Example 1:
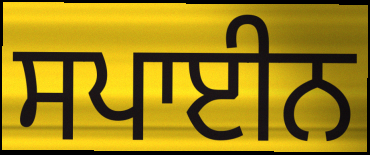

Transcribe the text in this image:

ਸਪਾਈਨ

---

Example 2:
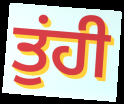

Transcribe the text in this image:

ਤੁਂਹੀ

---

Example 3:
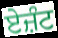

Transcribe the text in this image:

ਏਜ਼ੰਟ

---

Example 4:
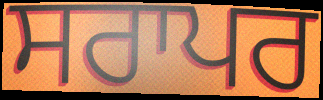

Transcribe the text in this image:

ਸਰਾਪਰ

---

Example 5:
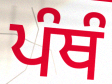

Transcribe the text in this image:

ਪੰਥੰ